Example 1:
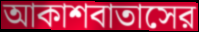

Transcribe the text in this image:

আকাশবাতাসের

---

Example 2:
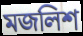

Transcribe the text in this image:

মজলিশ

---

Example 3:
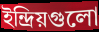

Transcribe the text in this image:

ইন্দ্রিয়গুলো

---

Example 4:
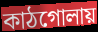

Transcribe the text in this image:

কাঠগোলায়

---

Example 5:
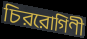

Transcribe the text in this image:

চিররোগিণী